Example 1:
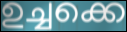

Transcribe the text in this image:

ഉച്ചക്കെ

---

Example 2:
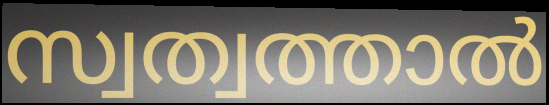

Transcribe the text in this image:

സ്വത്വത്താൽ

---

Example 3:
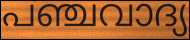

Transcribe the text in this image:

പഞ്ചവാദ്യ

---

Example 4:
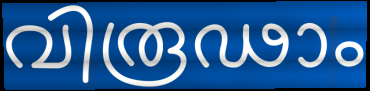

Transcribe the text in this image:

വിരൂഢാം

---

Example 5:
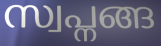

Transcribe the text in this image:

സ്വപ്നങ്ങ